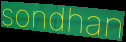
sondhan